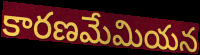
కారణమేమియన